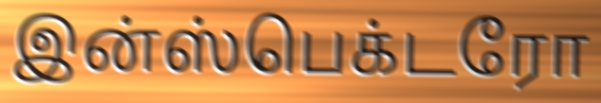
இன்ஸ்பெக்டரோ